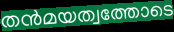
തൻമയത്വത്തോടെ